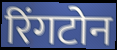
रिंगटोन